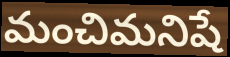
మంచిమనిషే